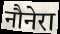
नौनेरा